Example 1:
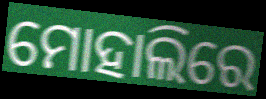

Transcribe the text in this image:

ମୋହାଲିରେ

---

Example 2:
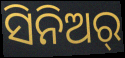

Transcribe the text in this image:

ସିନିଅର୍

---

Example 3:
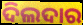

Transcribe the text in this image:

ଦିଲଦାର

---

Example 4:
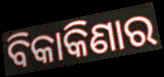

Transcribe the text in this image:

ବିକାକିଣାର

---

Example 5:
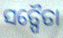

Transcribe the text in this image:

ସତ୍ପୈତା